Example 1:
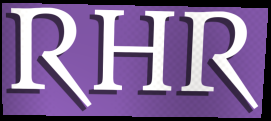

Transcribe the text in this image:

RHR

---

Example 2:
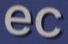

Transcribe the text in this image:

ec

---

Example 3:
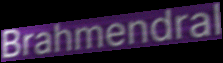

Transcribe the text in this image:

Brahmendral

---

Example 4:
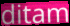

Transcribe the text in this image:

ditam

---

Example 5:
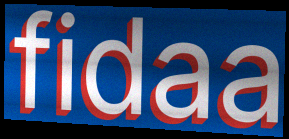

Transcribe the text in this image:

fidaa